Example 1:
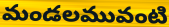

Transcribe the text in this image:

మండలమువంటి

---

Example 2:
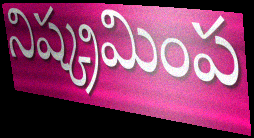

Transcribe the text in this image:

నిష్క్రమింప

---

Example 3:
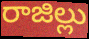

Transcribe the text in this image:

రాజిల్లు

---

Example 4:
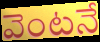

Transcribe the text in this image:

వెంటనే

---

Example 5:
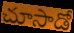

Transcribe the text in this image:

చూసాడో